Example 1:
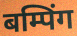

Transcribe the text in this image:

बम्पिंग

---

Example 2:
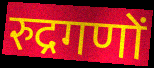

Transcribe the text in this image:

रुद्रगणों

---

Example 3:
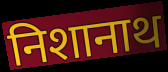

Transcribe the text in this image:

निशानाथ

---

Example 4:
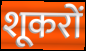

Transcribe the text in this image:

शूकरों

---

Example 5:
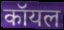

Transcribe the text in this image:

कॉयल